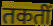
तकतीं